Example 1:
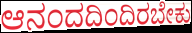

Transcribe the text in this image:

ಆನಂದದಿಂದಿರಬೇಕು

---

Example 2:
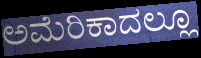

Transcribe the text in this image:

ಅಮೆರಿಕಾದಲ್ಲೂ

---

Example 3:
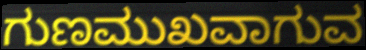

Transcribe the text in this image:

ಗುಣಮುಖವಾಗುವ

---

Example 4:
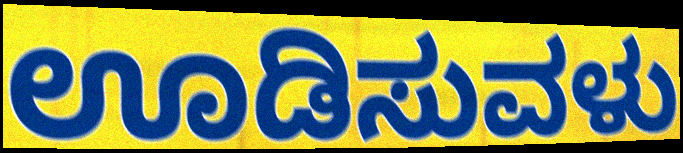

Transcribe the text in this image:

ಊಡಿಸುವಳು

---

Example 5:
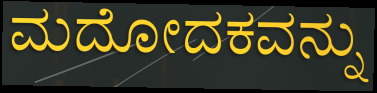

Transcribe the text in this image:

ಮದೋದಕವನ್ನು